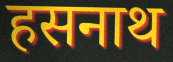
हसनाथ